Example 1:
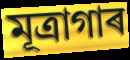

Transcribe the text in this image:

মূত্ৰাগাৰ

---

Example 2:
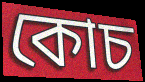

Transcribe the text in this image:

কোচ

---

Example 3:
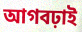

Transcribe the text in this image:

আগবঢ়াই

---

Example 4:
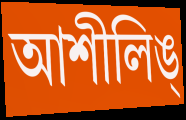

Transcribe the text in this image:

আশীলিঙ্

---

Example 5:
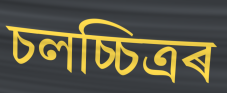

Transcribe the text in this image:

চলচ্চিত্ৰৰ